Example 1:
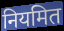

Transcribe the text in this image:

नियमित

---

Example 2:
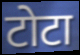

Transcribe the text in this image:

टोटा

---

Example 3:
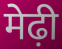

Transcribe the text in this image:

मेढ़ी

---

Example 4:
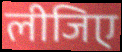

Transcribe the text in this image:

लीजिए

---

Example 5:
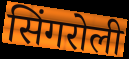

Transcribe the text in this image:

सिंगरोली